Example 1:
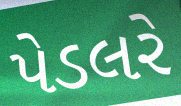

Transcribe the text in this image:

પેડલરે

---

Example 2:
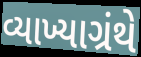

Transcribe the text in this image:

વ્યાખ્યાગ્રંથે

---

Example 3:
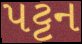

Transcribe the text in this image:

પટ્ટન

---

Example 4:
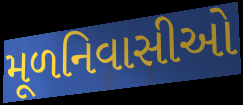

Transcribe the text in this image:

મૂળનિવાસીઓ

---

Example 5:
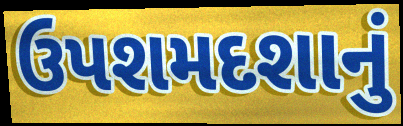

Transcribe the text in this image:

ઉપશમદશાનું